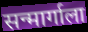
सन्मार्गाला